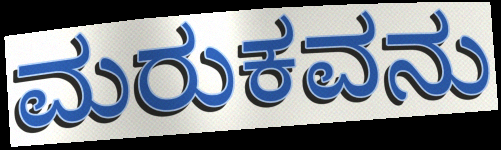
ಮರುಕವನು